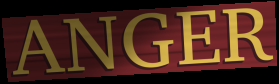
ANGER